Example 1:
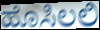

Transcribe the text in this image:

ಹೊಸಿಲಲಿ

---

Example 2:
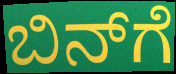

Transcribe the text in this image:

ಬಿನ್‌ಗೆ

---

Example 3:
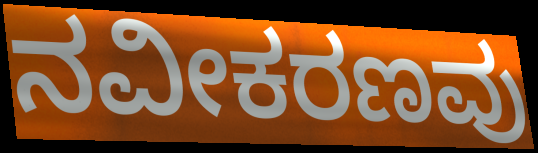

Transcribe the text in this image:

ನವೀಕರಣವು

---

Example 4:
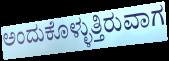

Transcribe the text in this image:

ಅಂದುಕೊಳ್ಳುತ್ತಿರುವಾಗ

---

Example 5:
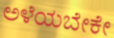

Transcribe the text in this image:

ಅಳೆಯಬೇಕೇ